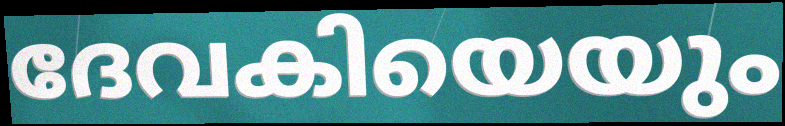
ദേവകിയെയും